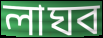
লাঘব